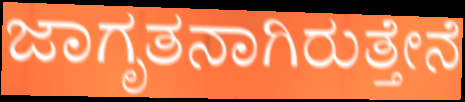
ಜಾಗೃತನಾಗಿರುತ್ತೇನೆ